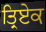
ਤ੍ਰਿਏਕ